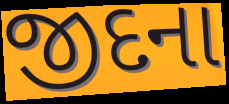
જીદના